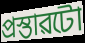
প্ৰস্তাৱটো